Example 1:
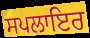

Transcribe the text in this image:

ਸਪਲਾਇਰ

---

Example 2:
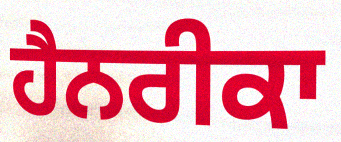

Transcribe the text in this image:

ਹੈਨਰੀਕਾ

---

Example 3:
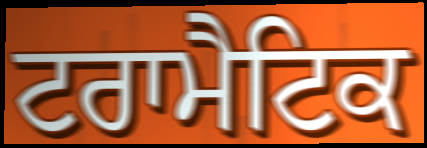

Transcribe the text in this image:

ਟਰਾਮੈਟਿਕ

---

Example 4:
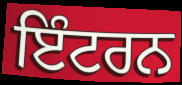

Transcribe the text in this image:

ਇੰਟਰਨ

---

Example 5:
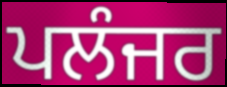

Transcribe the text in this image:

ਪਲੰਜਰ